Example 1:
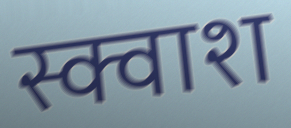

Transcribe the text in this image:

स्क्वाश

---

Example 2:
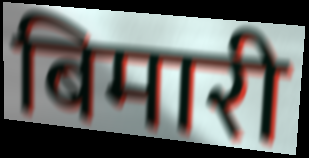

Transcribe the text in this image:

बिमारी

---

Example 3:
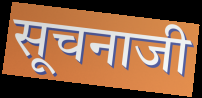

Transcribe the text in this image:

सूचनाजी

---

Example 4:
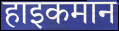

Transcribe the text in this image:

हाइकमान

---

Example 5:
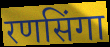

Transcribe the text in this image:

रणसिंगा